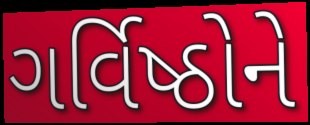
ગર્વિષ્ઠોને